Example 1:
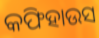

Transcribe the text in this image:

କଫିହାଉସ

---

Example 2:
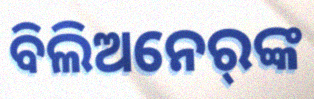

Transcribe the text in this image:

ବିଲିଅନେର୍‌ଙ୍କ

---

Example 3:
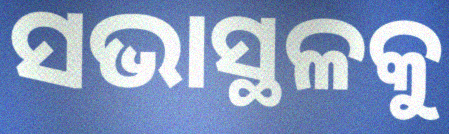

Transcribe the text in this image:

ସଭାସ୍ଥଳକୁ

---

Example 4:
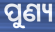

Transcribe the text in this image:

ପୁଣ୍ୟ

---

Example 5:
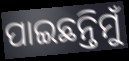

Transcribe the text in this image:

ପାଇଛନ୍ତିମୁଁ